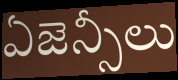
ఏజెన్సీలు